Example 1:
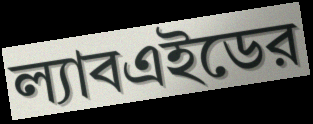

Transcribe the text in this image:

ল্যাবএইডের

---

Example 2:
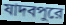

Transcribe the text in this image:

যাদবপুরে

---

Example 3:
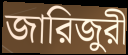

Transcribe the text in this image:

জারিজুরী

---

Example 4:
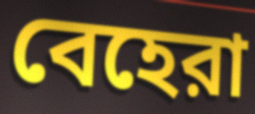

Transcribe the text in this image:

বেহেরা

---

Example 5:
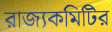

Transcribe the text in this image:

রাজ্যকমিটির